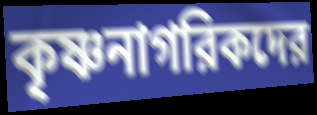
কৃষ্ণনাগরিকদের